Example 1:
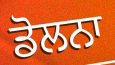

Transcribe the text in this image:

ਡੋਲਨਾ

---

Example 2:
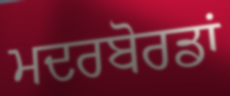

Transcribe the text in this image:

ਮਦਰਬੋਰਡਾਂ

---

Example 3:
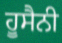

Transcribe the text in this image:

ਹੂਸੈਨੀ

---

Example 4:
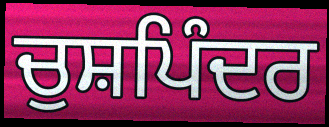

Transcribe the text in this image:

ਚੁਸ਼ਪਿੰਦਰ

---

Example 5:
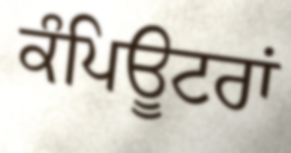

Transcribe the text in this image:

ਕੰਪਿਊਟਰਾਂ